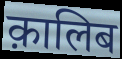
क़ालिब